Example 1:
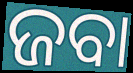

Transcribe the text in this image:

ଜବା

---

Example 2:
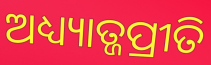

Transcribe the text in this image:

ଅଧ୍ୟ୍ୟାତ୍ଜପ୍ରୀତି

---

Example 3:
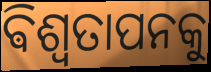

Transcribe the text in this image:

ଵିଶ୍ଵତାପନକୁ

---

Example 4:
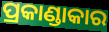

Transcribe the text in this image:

ପ୍ରକାଣ୍ଡାକାର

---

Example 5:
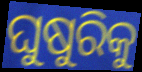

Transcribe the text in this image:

ଘୁଷୁରିକୁ